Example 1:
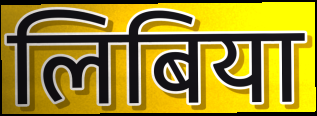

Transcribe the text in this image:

लिबिया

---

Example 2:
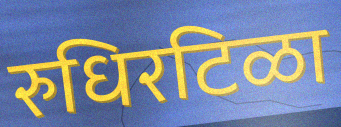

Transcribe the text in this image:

रुधिरटिळा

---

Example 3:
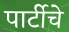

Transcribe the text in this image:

पार्टीचे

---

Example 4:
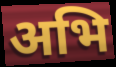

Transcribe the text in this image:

अभि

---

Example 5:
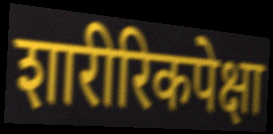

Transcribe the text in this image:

शारीरिकपेक्षा